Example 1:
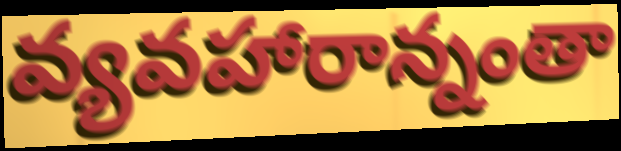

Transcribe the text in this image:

వ్యవహారాన్నంతా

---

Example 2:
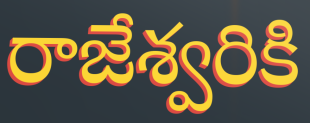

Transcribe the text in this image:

రాజేశ్వరికి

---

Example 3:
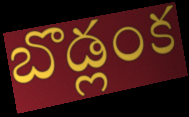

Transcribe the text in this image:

బొడ్లంక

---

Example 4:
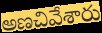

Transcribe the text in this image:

అణచివేశారు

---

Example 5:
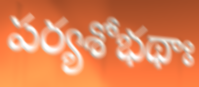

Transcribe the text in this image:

పర్యశోభథాః